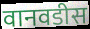
वानवडीस